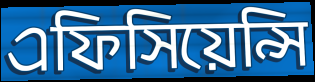
এফিসিয়েন্সি